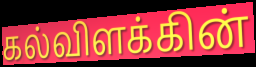
கல்விளக்கின்